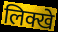
लिक्खे